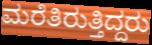
ಮರೆತಿರುತ್ತಿದ್ದರು